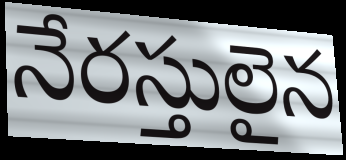
నేరస్తులైన